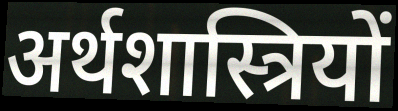
अर्थशास्त्रियों